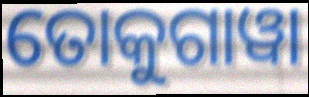
ତୋକୁଗାୱା